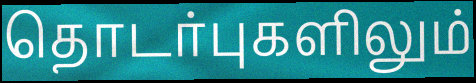
தொடர்புகளிலும்